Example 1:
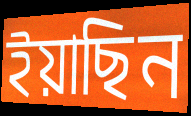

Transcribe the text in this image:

ইয়াছিন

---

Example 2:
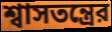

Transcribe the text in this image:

শ্বাসতন্ত্রের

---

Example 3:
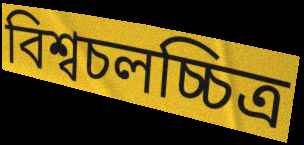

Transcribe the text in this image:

বিশ্বচলচ্চিত্র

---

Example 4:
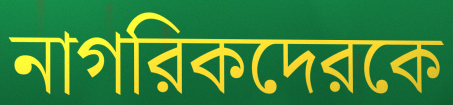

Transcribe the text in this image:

নাগরিকদেরকে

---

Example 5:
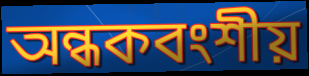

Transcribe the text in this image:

অন্ধকবংশীয়